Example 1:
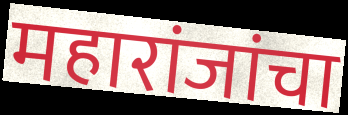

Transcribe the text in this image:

महारांजांचा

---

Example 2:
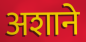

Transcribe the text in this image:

अशाने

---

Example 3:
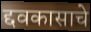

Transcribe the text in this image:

द्दवकासाचे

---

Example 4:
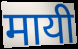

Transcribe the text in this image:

मायी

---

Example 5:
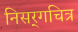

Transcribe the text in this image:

निसर्गचित्र